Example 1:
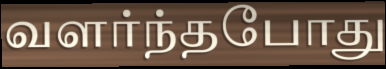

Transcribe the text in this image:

வளர்ந்தபோது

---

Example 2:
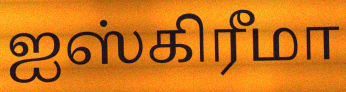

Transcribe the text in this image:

ஐஸ்கிரீமா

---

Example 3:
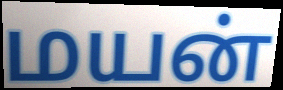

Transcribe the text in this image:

மயன்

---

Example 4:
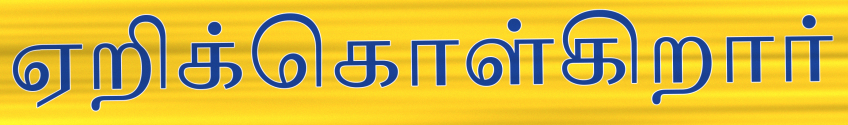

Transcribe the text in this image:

ஏறிக்கொள்கிறார்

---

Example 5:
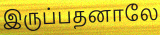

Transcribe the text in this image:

இருப்பதனாலே